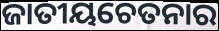
ଜାତୀୟଚେତନାର